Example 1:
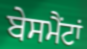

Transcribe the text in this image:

ਬੇਸਮੈਂਟਾਂ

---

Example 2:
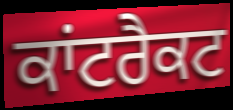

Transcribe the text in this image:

ਕਾਂਟਰੈਕਟ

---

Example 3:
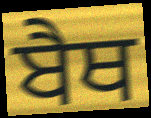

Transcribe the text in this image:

ਬੈਥ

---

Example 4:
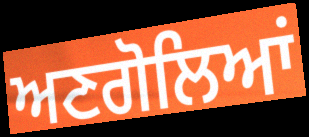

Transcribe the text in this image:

ਅਣਗੋਲਿਆਂ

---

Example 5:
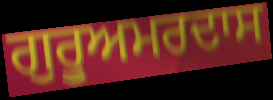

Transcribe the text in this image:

ਗੁਰੂਅਮਰਦਾਸ